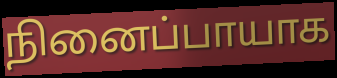
நினைப்பாயாக